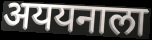
अययनाला